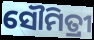
ସୌମିତ୍ରୀ